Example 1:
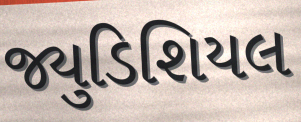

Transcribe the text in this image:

જ્યુડિશિયલ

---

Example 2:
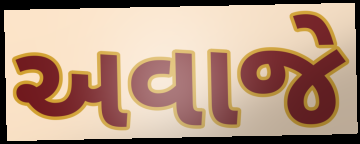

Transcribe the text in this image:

અવાજે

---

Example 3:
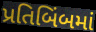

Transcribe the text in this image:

પ્રતિબિંબમાં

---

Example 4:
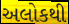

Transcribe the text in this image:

અલોકથી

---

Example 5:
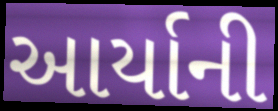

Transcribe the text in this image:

આર્યાની